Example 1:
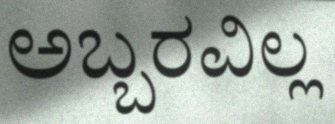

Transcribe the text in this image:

ಅಬ್ಬರವಿಲ್ಲ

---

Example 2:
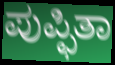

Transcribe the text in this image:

ಪುಪ್ಫಿತಾ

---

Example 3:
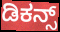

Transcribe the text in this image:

ಡಿಕನ್ಸ್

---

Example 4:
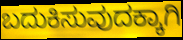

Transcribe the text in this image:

ಬದುಕಿಸುವುದಕ್ಕಾಗಿ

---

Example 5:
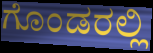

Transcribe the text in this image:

ಗೊಂಡರಲ್ಲಿ